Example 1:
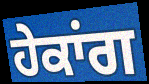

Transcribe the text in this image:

ਹੇਕਾਂਗ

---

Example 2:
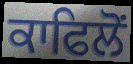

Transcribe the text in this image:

ਕਾਫਿਲੋਂ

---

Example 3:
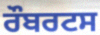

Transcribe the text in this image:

ਰੌਬਰਟਸ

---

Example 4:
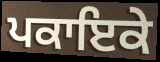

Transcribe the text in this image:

ਪਕਾਇਕੇ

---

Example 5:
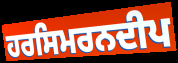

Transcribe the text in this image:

ਹਰਸਿਮਰਨਦੀਪ